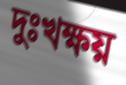
দুঃখক্ষয়